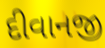
દીવાનજી